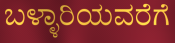
ಬಳ್ಳಾರಿಯವರೆಗೆ